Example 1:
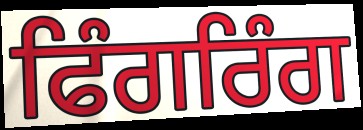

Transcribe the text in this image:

ਫਿੰਗਰਿੰਗ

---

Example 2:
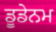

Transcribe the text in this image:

ਡੂਡੇਨਮ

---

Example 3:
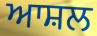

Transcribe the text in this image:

ਆਸ਼ਲ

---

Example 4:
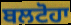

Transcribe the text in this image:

ਬਲਟੋਹਾ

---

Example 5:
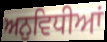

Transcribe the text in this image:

ਅਨੁਵਿਧੀਆਂ